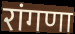
रांगणा